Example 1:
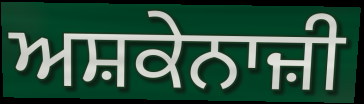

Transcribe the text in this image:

ਅਸ਼ਕੇਨਾਜ਼ੀ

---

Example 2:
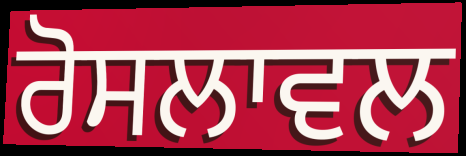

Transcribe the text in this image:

ਰੋਸਲਾਵਲ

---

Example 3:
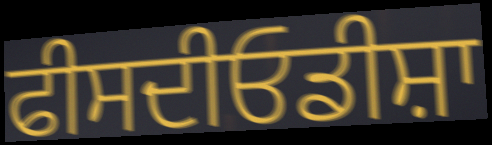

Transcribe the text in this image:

ਫੀਸਦੀਓਡੀਸ਼ਾ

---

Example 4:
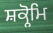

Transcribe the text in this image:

ਸ਼ਕ੍ਨੋਮਿ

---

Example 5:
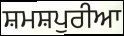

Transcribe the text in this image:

ਸ਼ਮਸ਼ਪੁਰੀਆ